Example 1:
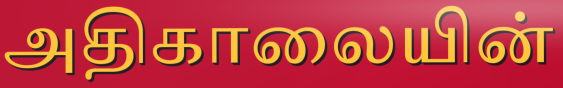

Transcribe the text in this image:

அதிகாலையின்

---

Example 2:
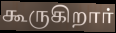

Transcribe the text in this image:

கூருகிறார்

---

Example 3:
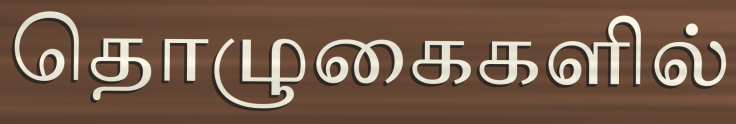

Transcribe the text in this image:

தொழுகைகளில்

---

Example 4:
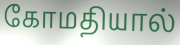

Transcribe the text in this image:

கோமதியால்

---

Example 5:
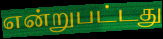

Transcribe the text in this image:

என்றுபட்டது